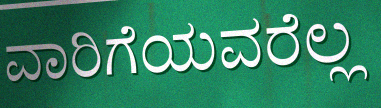
ವಾರಿಗೆಯವರೆಲ್ಲ